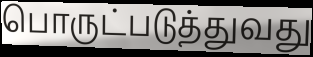
பொருட்படுத்துவது